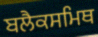
ਬਲੈਕਸਮਿਥ